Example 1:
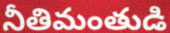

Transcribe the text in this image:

నీతిమంతుడి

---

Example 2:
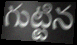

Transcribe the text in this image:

గుట్టిన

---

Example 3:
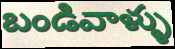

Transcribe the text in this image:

బండివాళ్ళు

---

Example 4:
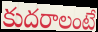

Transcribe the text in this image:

కుదరాలంటే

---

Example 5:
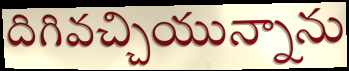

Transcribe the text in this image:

దిగివచ్చియున్నాను